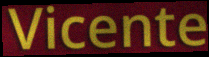
Vicente